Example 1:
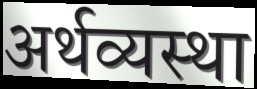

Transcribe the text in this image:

अर्थव्यस्था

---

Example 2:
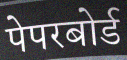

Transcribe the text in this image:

पेपरबोर्ड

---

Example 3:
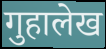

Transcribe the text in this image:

गुहालेख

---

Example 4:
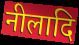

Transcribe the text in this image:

नीलादि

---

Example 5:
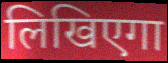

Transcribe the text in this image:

लिखिएगा